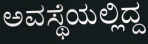
ಅವಸ್ಥೆಯಲ್ಲಿದ್ದ